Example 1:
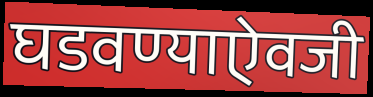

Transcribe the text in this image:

घडवण्याऐवजी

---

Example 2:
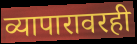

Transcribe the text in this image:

व्यापारावरही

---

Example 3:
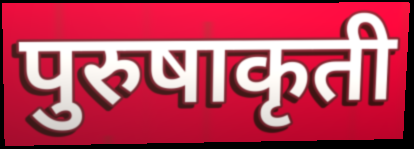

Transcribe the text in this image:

पुरुषाकृती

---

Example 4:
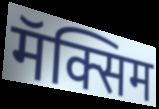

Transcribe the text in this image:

मॅक्सिम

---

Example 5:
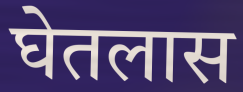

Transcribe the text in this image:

घेतलास